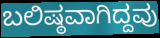
ಬಲಿಷ್ಠವಾಗಿದ್ದವು